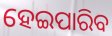
ହେଇପାରିବ